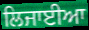
ਲਿਜਾਈਆ